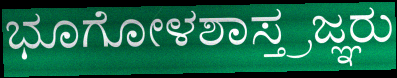
ಭೂಗೋಳಶಾಸ್ತ್ರಜ್ಞರು